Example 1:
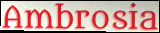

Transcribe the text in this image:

Ambrosia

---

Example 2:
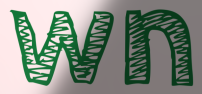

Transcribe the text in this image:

wn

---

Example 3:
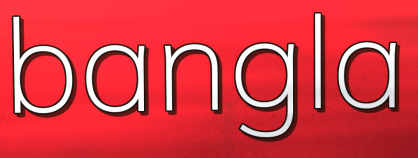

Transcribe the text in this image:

bangla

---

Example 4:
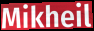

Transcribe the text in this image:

Mikheil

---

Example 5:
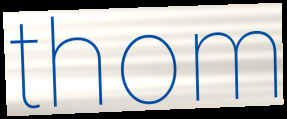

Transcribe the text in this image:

thom